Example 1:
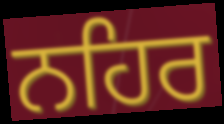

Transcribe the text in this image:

ਨਹਿਰ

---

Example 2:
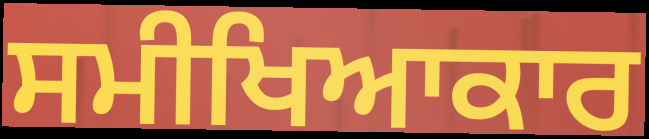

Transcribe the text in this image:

ਸਮੀਖਿਆਕਾਰ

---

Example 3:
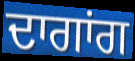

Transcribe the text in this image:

ਦਾਗਾਂਗ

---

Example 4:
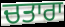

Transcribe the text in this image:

ਚਤਾਰਾ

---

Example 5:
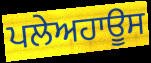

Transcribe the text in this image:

ਪਲੇਅਹਾਊਸ